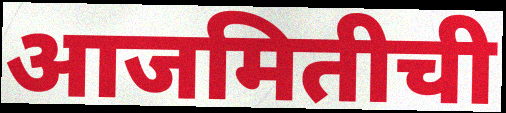
आजमितीची